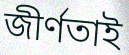
জীর্ণতাই